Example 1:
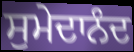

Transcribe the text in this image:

ਸੁਮੇਦਾਨੰਦ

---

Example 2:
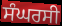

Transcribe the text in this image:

ਸੰਘਰਸੀ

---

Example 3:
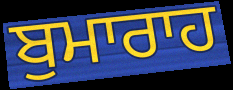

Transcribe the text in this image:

ਬੁਮਾਰਾਹ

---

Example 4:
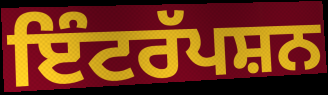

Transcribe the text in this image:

ਇੰਟਰੱਪਸ਼ਨ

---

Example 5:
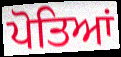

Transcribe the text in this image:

ਪੋਤਿਆਂ